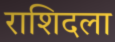
राशिदला